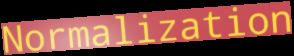
Normalization